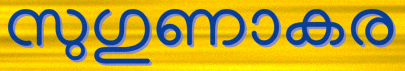
സുഗുണാകര